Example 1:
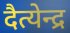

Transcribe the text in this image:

दैत्येन्द्र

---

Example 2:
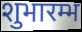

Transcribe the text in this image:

शुभारम्भ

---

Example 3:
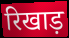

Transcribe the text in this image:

रिखाड़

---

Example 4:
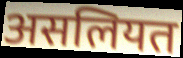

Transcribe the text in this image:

असलियत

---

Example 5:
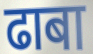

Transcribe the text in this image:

ढाबा